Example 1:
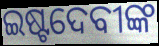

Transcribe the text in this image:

ଇଷ୍ଟଦେବୀଙ୍କ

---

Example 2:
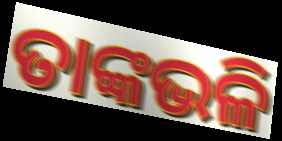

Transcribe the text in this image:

ତାଙ୍କଭଳି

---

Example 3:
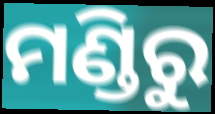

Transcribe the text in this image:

ମଣ୍ଡିରୁ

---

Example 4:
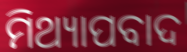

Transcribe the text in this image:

ମିଥ୍ୟାପବାଦ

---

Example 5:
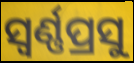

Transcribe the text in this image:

ସ୍ୱର୍ଣ୍ଣପ୍ରସୁ